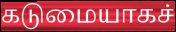
கடுமையாகச்